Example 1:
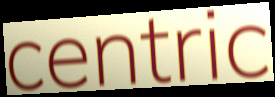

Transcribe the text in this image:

centric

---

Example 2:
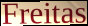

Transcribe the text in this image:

Freitas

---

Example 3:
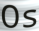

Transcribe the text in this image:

Os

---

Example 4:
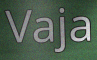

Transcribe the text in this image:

Vaja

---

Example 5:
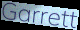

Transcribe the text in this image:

Garrett